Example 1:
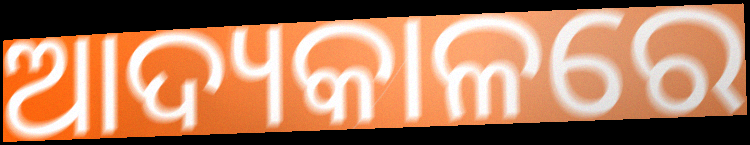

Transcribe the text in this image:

ଆଦ୍ୟକାଳରେ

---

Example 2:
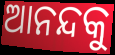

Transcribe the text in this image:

ଆନନ୍ଦକୁ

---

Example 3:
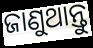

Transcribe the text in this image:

ଜାଣୁଥାନ୍ତୁ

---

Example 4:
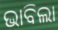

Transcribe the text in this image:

ଭାବିଲା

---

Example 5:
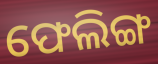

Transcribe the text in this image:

ଫେଲିଙ୍ଗ